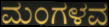
ಮಂಗಳವ